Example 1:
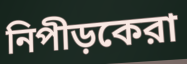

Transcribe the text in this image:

নিপীড়কেরা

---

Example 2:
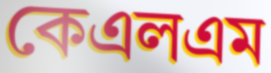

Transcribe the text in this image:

কেএলএম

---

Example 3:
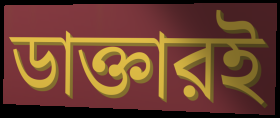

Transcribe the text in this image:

ডাক্তারই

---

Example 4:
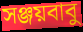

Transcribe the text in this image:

সঞ্জয়বাবু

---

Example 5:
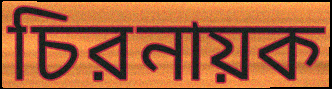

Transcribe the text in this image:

চিরনায়ক